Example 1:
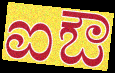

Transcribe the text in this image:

ಐಔ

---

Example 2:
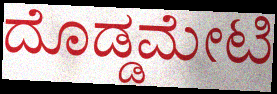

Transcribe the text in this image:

ದೊಡ್ಡಮೇಟಿ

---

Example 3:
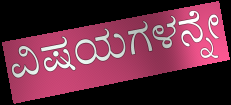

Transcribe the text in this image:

ವಿಷಯಗಳನ್ನೇ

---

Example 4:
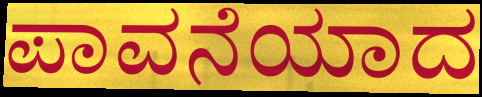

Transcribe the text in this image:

ಪಾವನೆಯಾದ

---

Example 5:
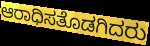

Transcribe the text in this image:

ಆರಾಧಿಸತೊಡಗಿದರು